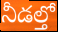
నీడల్తో